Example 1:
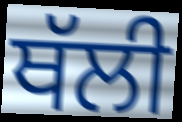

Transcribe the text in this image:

ਥੱਲੀ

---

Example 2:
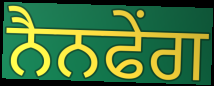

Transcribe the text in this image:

ਨੈਨਫੇਂਗ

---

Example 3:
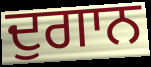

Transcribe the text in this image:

ਦੁਗਾਨ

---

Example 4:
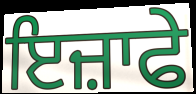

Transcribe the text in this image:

ਇਜ਼ਾਫੇ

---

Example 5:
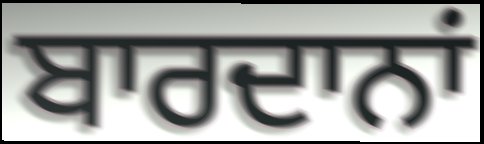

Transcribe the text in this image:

ਬਾਰਦਾਨਾਂ